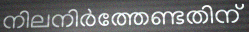
നിലനിർത്തേണ്ടതിന്